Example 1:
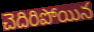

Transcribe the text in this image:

చెదిరిపోయిన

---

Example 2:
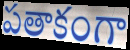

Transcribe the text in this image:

పతాకంగా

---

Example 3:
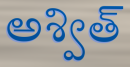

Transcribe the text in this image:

అశ్విత్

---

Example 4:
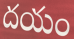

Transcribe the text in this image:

దయం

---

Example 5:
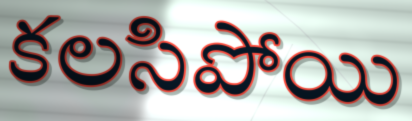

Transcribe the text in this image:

కలసిపోయి